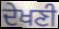
ਦੇਖਣੀ